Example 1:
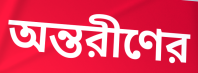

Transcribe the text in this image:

অন্তরীণের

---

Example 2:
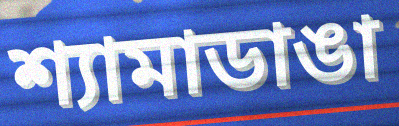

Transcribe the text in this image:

শ্যামাডাঙা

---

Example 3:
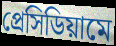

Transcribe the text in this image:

প্রেসিডিয়ামে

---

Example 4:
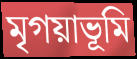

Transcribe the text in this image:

মৃগয়াভূমি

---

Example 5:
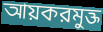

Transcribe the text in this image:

আয়করমুক্ত